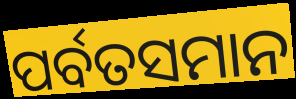
ପର୍ବତସମାନ